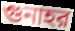
গুনাহর